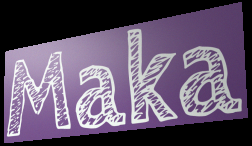
Maka